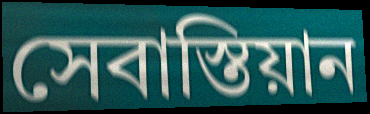
সেবাস্তিয়ান